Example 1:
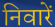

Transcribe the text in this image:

निवारें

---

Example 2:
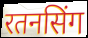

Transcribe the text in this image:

रतनसिंग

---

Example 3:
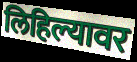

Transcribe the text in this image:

लिहिल्यावर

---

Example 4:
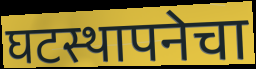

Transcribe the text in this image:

घटस्थापनेचा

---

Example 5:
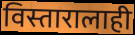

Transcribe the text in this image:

विस्तारालाही